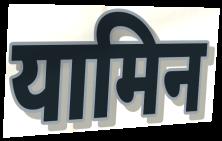
यामिन